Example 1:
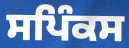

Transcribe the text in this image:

ਸਪਿੰਕਸ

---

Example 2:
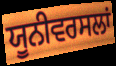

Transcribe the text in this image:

ਯੂਨੀਵਰਸਲਾਂ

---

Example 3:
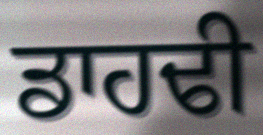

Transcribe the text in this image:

ਡਾਹਢੀ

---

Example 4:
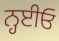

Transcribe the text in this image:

ਨ੍ਹਈਓ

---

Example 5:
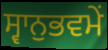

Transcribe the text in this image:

ਸ੍ਵਾਨੁਭਵਮੇਂ